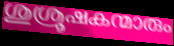
ശുശ്രൂഷകന്മാരും